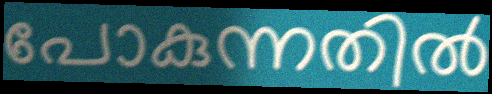
പോകുന്നതിൽ